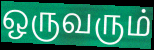
ஒருவரும்